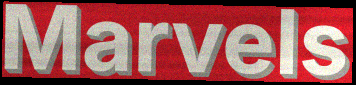
Marvels